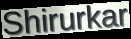
Shirurkar